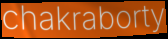
chakraborty